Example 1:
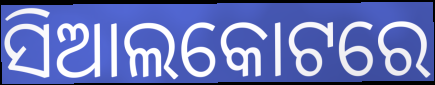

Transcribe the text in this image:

ସିଆଲକୋଟରେ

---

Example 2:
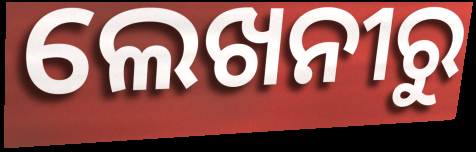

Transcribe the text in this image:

ଲେଖନୀରୁ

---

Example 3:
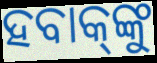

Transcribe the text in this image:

ହବାକ୍‌ଙ୍କୁ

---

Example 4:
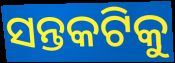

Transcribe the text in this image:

ସନ୍ତକଟିକୁ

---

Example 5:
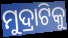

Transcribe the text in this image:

ମୁଦ୍ରାଟିକୁ